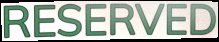
RESERVED